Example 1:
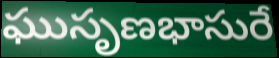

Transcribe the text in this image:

ఘుసృణభాసురే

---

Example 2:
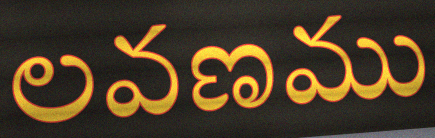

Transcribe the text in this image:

లవణము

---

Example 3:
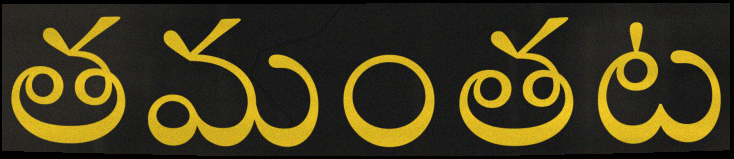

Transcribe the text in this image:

తమంతట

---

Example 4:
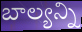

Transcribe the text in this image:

బాల్యన్ని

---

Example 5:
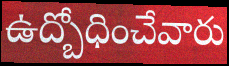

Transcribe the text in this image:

ఉద్బోధించేవారు